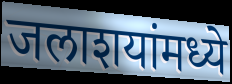
जलाशयांमध्ये